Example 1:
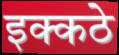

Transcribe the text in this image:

इक्कठे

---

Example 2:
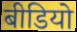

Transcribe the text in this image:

बीडियो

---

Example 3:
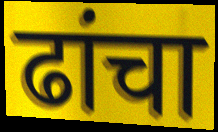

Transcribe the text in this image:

ढांचा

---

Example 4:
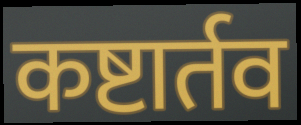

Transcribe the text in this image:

कष्टार्तव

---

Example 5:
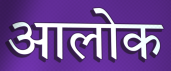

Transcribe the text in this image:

आलोक